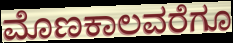
ಮೊಣಕಾಲವರೆಗೂ